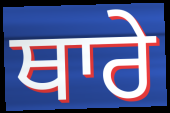
ਥਾਰੇ